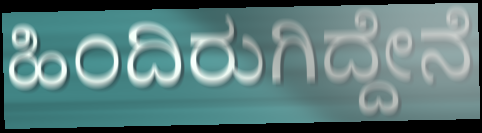
ಹಿಂದಿರುಗಿದ್ದೇನೆ